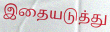
இதையடுத்து